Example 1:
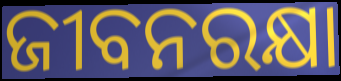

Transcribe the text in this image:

ଜୀବନରକ୍ଷା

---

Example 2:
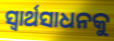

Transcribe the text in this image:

ସ୍ଵାର୍ଥସାଧନକୁ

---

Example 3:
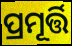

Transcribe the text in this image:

ପ୍ରମୂର୍ତ୍ତି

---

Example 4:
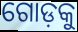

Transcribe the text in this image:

ଗୋଡ଼କୁ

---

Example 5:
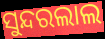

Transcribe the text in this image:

ସୁନ୍ଦରଲାଲ